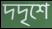
দদৃশে